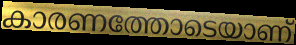
കാരണത്തോടെയാണ്